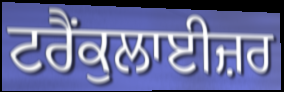
ਟਰੈਂਕੁਲਾਈਜ਼ਰ